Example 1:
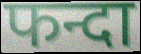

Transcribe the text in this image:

फन्दा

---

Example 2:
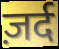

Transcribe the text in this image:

ज़र्द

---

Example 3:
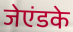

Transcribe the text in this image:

जेएंडके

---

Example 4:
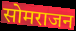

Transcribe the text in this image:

सोमराजन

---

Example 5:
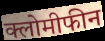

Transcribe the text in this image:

क्लोमीफीन